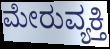
ಮೇರುವ್ಯಕ್ತಿ